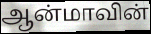
ஆன்மாவின்